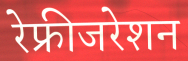
रेफ्रीजरेशन